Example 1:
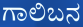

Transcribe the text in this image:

ಗಾಲಿಬನ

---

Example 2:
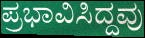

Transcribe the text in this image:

ಪ್ರಭಾವಿಸಿದ್ದವು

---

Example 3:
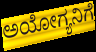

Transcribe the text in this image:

ಅಯೋಗ್ಯನಿಗೆ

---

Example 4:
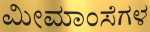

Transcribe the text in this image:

ಮೀಮಾಂಸೆಗಳ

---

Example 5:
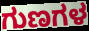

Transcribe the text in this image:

ಗುಣಗಳ